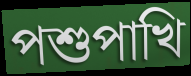
পশুপাখি